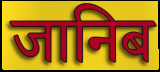
जानिब